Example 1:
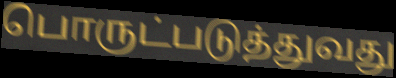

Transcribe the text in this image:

பொருட்படுத்துவது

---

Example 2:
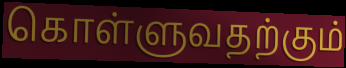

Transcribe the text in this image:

கொள்ளுவதற்கும்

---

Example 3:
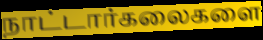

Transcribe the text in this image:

நாட்டார்கலைகளை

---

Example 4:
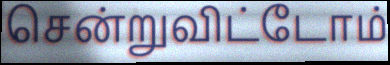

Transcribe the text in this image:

சென்றுவிட்டோம்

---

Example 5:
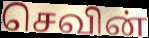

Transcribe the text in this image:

செவின்